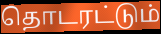
தொடரட்டும்